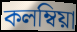
কলম্বিয়া